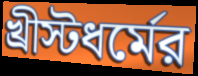
খ্রীস্টধর্মের